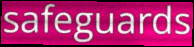
safeguards